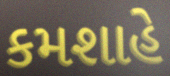
કમશાહે